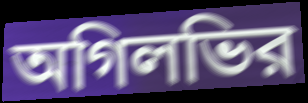
অগিলভির